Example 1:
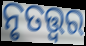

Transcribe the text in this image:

ନୃତତ୍ତ୍ଵର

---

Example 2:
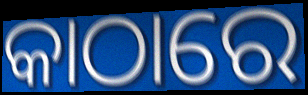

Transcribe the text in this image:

କାଠାରେ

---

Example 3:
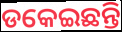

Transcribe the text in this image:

ଡକେଇଛନ୍ତି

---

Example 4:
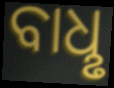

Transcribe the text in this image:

ବାଧୢ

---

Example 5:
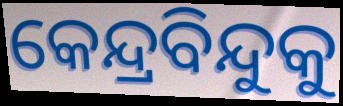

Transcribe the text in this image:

କେନ୍ଦ୍ରବିନ୍ଦୁକୁ